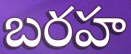
బరహ